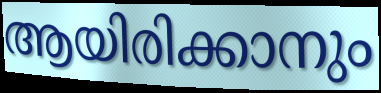
ആയിരിക്കാനും